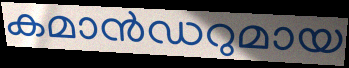
കമാൻഡറുമായ